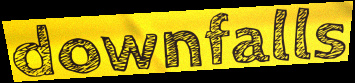
downfalls